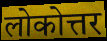
लोकोत्तर